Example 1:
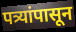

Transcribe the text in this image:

पत्र्यांपासून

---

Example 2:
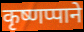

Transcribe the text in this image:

कृष्णप्पाने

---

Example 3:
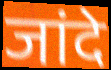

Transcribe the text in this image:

जांदे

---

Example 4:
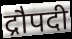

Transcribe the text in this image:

द्रौपदी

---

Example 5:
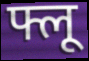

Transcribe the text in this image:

फ्लू